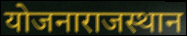
योजनाराजस्थान